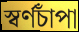
স্বর্ণচাঁপা